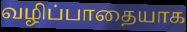
வழிப்பாதையாக